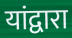
यांद्वारा